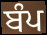
ਬੰਪ